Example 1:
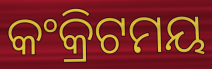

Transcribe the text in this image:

କଂକ୍ରିଟମୟ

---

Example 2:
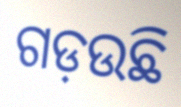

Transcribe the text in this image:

ଗଡ଼ଉଛି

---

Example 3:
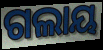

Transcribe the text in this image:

ଗଲାୟ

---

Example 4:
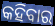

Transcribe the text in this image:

କହିବାର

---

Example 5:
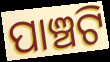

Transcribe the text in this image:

ପାଞ୍ଚଟି